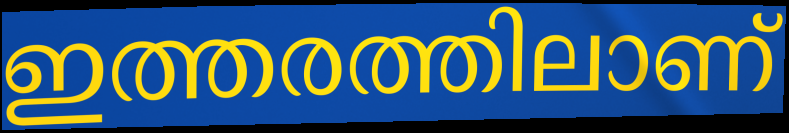
ഇത്തരത്തിലാണ്